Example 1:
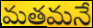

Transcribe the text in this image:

మతమనే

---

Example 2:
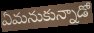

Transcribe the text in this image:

ఏమనుకున్నాడో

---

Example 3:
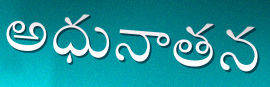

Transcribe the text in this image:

అధునాతన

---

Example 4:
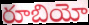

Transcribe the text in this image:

రూబియో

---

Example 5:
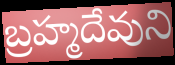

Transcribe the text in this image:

బ్రహ్మదేవుని